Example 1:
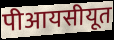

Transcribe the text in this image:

पीआयसीयूत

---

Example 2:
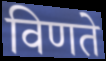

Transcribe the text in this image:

विणते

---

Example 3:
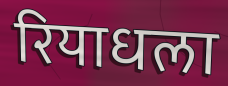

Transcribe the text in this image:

रियाधला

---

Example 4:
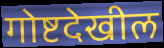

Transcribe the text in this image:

गोष्टदेखील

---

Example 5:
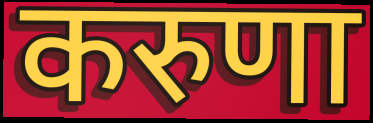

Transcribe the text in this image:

करुणा